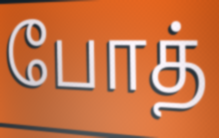
போத்